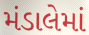
મંડાલેમાં